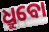
ଧ୍ରୁବୋ